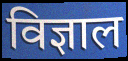
विज्ञाल